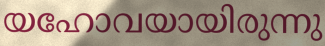
യഹോവയായിരുന്നു